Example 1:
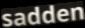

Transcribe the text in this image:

sadden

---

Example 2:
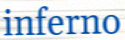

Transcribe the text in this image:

inferno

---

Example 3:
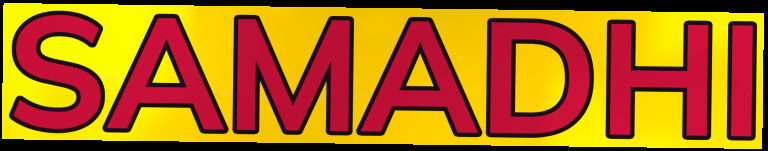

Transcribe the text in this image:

SAMADHI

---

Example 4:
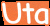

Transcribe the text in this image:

Uta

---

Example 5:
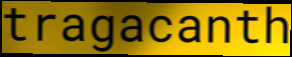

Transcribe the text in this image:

tragacanth